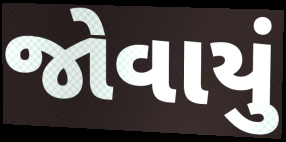
જોવાયું